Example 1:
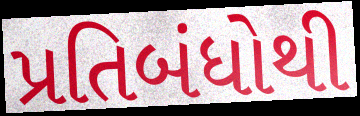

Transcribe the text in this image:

પ્રતિબંધોથી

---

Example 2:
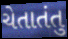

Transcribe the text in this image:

ચેતાતંતુ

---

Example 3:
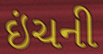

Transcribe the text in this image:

ઇંચની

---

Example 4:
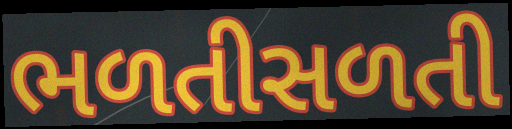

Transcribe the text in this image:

ભળતીસળતી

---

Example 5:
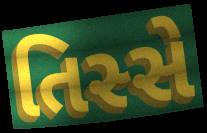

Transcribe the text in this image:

તિસ્સે